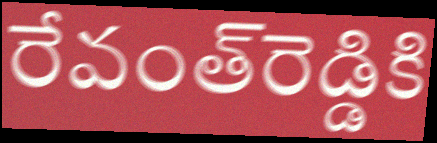
రేవంత్‌రెడ్డికి